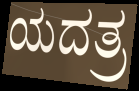
ಯದತ್ರ